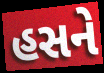
હસને